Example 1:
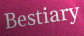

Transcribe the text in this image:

Bestiary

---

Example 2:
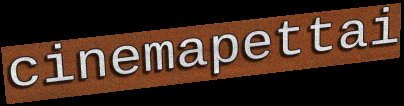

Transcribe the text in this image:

cinemapettai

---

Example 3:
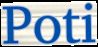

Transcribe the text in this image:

Poti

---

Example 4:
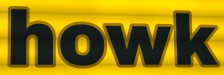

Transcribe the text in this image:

howk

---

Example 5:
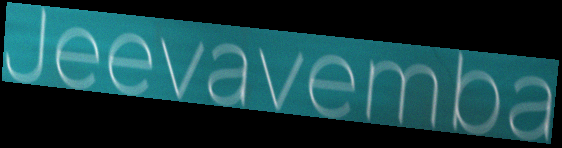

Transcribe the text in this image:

Jeevavemba